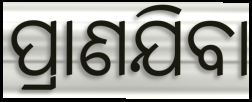
ପ୍ରାଣଯିବା